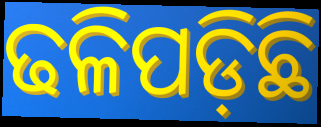
ଢଳିପଡ଼ିଛି